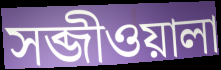
সব্জীওয়ালা